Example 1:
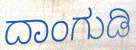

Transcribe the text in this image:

ದಾಂಗುಡಿ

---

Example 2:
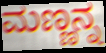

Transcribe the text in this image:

ಮಣ್ಣನ್ನ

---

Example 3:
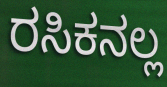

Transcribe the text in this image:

ರಸಿಕನಲ್ಲ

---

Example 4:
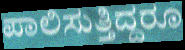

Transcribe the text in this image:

ಪಾಲಿಸುತ್ತಿದ್ದರೂ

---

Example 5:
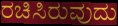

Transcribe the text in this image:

ರಚಿಸಿರುವುದು